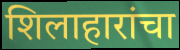
शिलाहारांचा